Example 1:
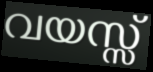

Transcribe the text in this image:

വയസ്സ്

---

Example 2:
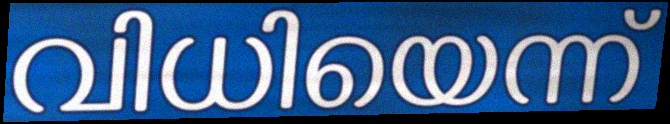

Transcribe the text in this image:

വിധിയെന്ന്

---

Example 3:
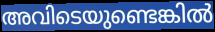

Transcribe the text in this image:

അവിടെയുണ്ടെങ്കിൽ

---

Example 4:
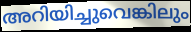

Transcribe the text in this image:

അറിയിച്ചുവെങ്കിലും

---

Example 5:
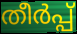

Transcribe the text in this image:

തീർപ്പ്